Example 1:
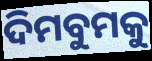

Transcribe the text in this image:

ଦିମବୁମକୁ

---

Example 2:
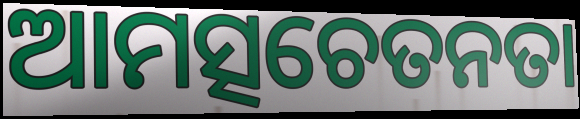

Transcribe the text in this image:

ଆମତ୍ସଚେତନତା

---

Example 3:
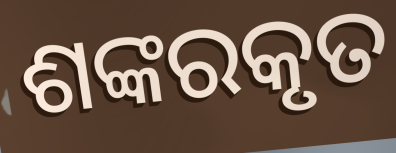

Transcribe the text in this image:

ଶଙ୍କରକୃତ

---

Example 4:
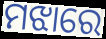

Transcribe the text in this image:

ମଝାରେ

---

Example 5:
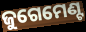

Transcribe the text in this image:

ଜୁଗେମେଣ୍ଟ